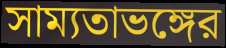
সাম্যতাভঙ্গের